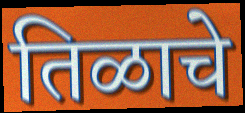
तिळाचे